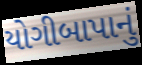
યોગીબાપાનું